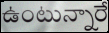
ఉంటున్నారే